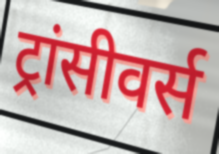
ट्रांसीवर्स